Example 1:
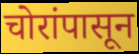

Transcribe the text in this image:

चोरांपासून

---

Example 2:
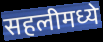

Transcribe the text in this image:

सहलीमध्ये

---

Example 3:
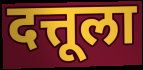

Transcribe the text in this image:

दत्तूला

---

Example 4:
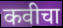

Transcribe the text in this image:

कवीचा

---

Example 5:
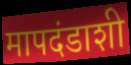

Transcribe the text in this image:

मापदंडाशी